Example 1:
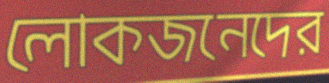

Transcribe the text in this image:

লোকজনেদের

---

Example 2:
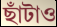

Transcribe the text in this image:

ছাঁটাও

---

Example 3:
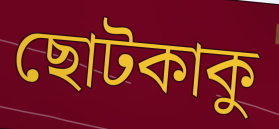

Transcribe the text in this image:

ছোটকাকু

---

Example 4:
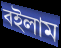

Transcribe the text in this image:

বইলাম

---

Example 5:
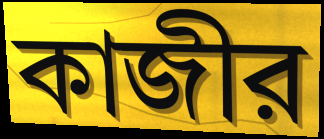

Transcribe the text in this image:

কাজীর